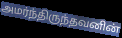
அமர்ந்திருந்தவனின்